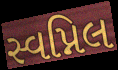
સ્વપ્નિલ